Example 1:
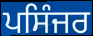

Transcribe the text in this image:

ਪਸਿੰਜਰ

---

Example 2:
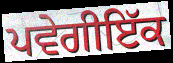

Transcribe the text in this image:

ਪਵੇਗੀਇੱਕ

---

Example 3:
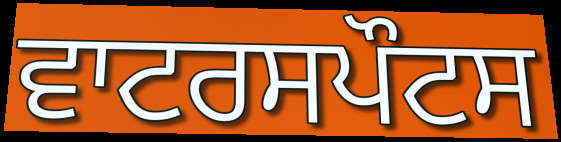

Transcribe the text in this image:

ਵਾਟਰਸਪੌਟਸ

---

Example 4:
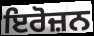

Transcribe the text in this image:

ਇਰੋਜ਼ਨ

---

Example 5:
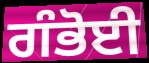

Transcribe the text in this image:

ਗੰਭੋਈ